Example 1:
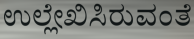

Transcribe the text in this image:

ಉಲ್ಲೇಖಿಸಿರುವಂತೆ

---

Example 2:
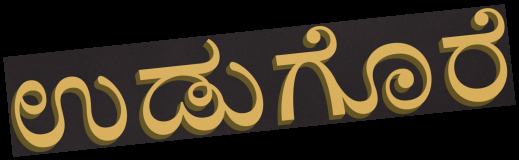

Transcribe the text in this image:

ಉಡುಗೊರೆ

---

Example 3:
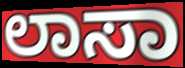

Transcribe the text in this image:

ಲಾಸಾ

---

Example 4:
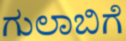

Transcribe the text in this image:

ಗುಲಾಬಿಗೆ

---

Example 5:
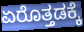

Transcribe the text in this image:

ಏರೊತ್ತಡಕ್ಕೆ